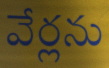
వేర్లను